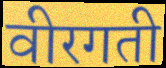
वीरगती